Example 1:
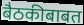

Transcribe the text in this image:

बैठकीबाबत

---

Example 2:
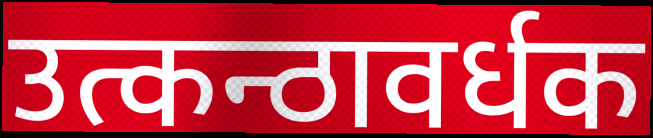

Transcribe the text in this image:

उत्कन्ठावर्धक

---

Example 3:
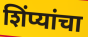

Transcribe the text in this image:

शिंप्यांचा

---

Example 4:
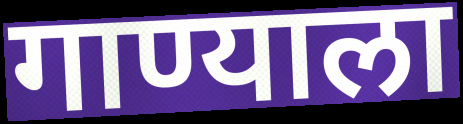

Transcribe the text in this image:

गाण्याला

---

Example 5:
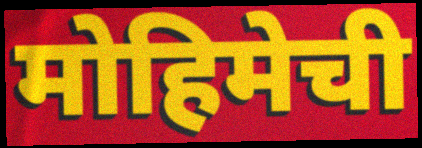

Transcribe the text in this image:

मोहिमेची